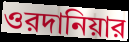
ওরদানিয়ার